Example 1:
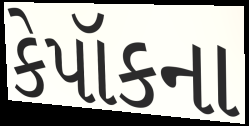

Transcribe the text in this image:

કેપૉકના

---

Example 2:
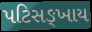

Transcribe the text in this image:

પટિસઙ્ખાય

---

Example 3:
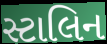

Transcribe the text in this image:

સ્ટાલિન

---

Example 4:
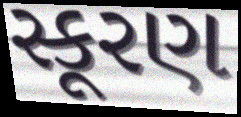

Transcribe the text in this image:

સ્કૂરણ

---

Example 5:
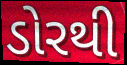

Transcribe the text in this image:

ડોરથી